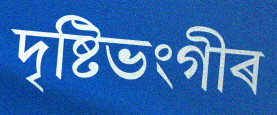
দৃষ্টিভংগীৰ